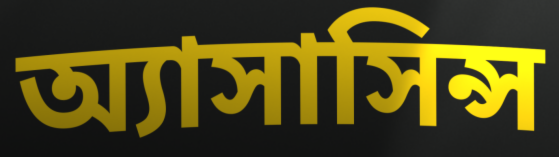
অ্যাসাসিন্স